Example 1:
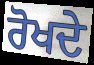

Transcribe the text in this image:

ਰੋਖਦੇ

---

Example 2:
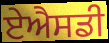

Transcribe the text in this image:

ਏਐਸਡੀ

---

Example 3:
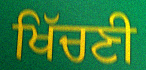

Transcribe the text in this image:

ਖਿੱਚਣੀ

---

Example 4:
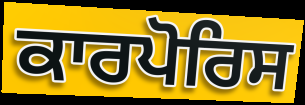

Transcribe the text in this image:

ਕਾਰਪੋਰਿਸ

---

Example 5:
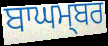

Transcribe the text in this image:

ਬਾਘਮ੍ਬਰ